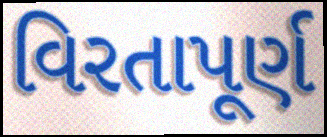
વિરતાપૂર્ણ